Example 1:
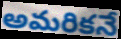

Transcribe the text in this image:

అమరికనే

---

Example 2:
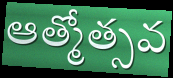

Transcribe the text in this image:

ఆత్మోత్సవ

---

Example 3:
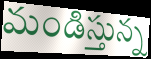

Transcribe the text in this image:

మండిస్తున్న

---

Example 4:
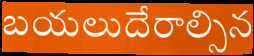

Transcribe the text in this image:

బయలుదేరాల్సిన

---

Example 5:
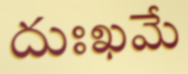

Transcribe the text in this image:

దుఃఖమే